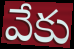
వేకు